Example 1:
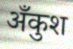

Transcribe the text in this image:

अँकुश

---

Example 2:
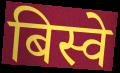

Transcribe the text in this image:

बिस्वे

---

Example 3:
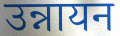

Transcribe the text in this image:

उन्नायन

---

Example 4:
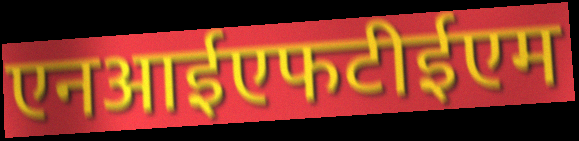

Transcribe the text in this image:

एनआईएफटीईएम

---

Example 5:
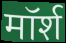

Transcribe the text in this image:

मॉर्श